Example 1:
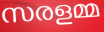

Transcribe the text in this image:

സരളമ്മ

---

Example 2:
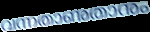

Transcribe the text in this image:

വന്നതാണുതാനും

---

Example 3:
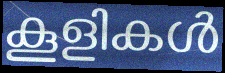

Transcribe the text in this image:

കൂളികൾ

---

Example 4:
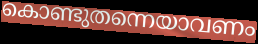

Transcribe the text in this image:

കൊണ്ടുതന്നെയാവണം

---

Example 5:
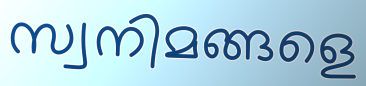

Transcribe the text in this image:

സ്വനിമങ്ങളെ